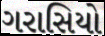
ગરાસિયો